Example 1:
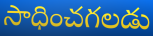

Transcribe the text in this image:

సాధించగలడు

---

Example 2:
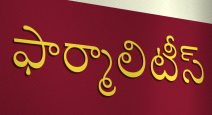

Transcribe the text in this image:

ఫార్మాలిటీస్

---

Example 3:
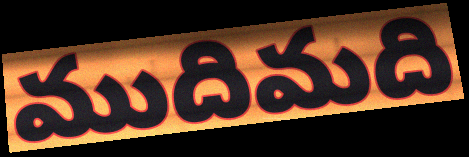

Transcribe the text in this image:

ముదిమది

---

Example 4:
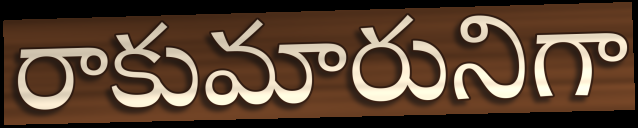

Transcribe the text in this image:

రాకుమారునిగా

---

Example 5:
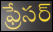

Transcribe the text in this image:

ఫ్రేసర్